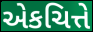
એકચિત્તે